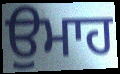
ਉਮਾਹ